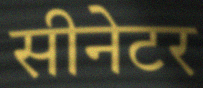
सीनेटर